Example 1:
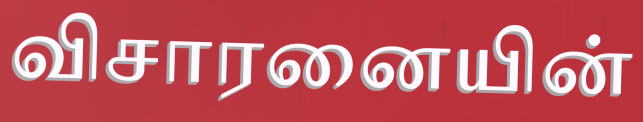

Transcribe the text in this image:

விசாரனையின்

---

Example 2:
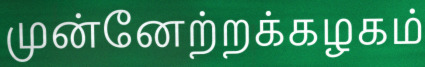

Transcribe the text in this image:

முன்னேற்றக்கழகம்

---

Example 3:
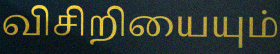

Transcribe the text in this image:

விசிறியையும்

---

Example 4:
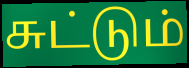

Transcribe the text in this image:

சுட்டும்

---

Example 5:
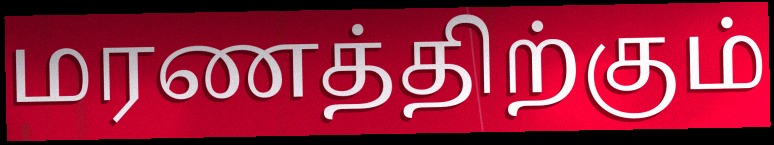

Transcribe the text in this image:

மரணத்திற்கும்